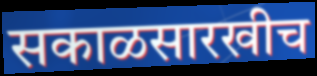
सकाळसारखीच